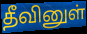
தீவினுள்